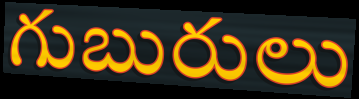
గుబురులు